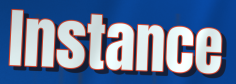
Instance